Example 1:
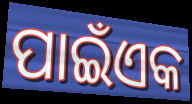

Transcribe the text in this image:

ପାଇଁଏକ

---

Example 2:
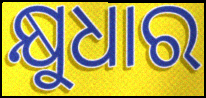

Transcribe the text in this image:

କ୍ଷୁଧାର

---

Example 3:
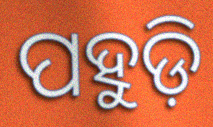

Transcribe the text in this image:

ପହୁଡ଼ି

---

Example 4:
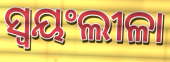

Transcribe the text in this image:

ସ୍ବୟଂଲୀଳା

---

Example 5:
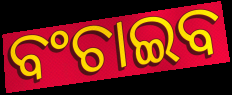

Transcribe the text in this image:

ବଂଚାଇବ